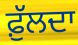
ਫ਼ੁੱਲਦਾ